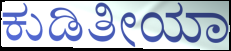
ಕುಡಿತೀಯಾ